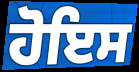
ਹੋਇਸ